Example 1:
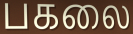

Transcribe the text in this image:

பகலை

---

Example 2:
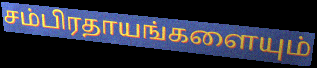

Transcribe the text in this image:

சம்பிரதாயங்களையும்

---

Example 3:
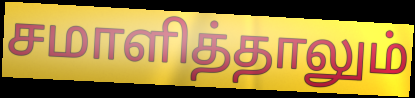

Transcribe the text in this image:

சமாளித்தாலும்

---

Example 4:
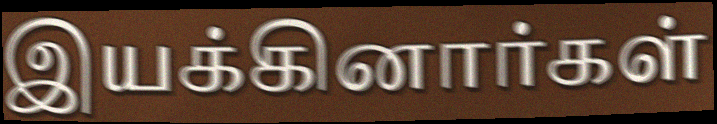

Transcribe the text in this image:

இயக்கினார்கள்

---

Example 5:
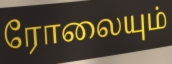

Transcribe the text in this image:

ரோலையும்